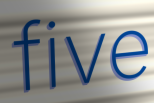
five